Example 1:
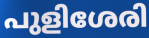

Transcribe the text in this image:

പുളിശേരി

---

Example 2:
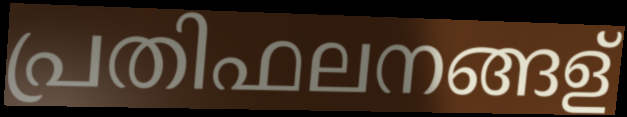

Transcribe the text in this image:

പ്രതിഫലനങ്ങള്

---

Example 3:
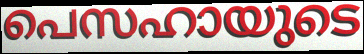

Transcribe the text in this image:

പെസഹായുടെ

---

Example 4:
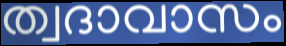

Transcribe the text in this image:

ത്വദാവാസം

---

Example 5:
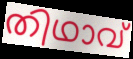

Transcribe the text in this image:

തിഥാവ്